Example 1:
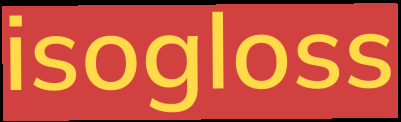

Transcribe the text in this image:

isogloss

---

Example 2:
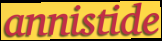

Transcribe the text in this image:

annistide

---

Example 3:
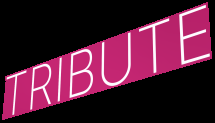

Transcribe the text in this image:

TRIBUTE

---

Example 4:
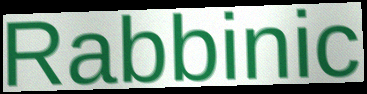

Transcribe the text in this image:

Rabbinic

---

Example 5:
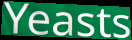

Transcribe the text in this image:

Yeasts